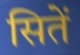
सितें